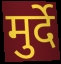
मुर्दे